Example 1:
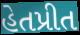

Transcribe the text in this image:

હેતપ્રીત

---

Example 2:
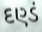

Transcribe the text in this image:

દણ્ડં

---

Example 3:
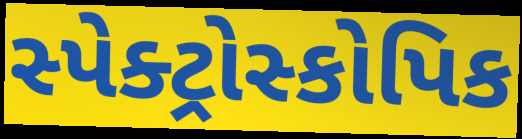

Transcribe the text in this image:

સ્પેક્ટ્રોસ્કોપિક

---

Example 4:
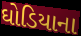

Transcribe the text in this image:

ઘોડિયાના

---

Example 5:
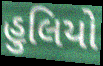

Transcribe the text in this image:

હુલિયો